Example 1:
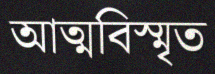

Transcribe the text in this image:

আত্মবিস্মৃত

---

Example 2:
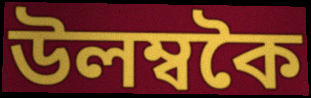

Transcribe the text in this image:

উলম্বকৈ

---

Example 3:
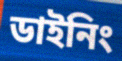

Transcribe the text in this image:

ডাইনিং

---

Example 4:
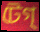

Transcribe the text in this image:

টেগ্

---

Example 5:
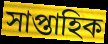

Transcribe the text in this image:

সাপ্তাহিক